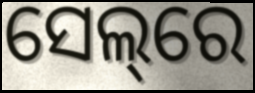
ସେଲ୍‌ରେ